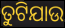
ତୁଟିଯାଉ